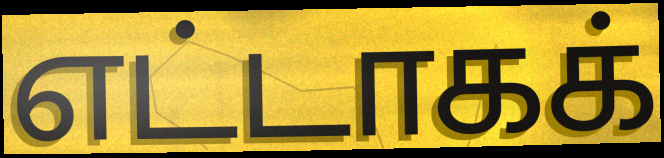
எட்டாகக்